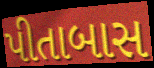
પીતાબાસ